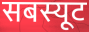
सबस्यूट